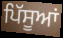
ਪਿੱਸੂਆਂ